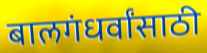
बालगंधर्वांसाठी